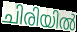
ചിരിയിൽ